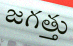
జగత్తు